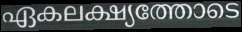
ഏകലക്ഷ്യത്തോടെ